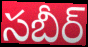
సబీర్